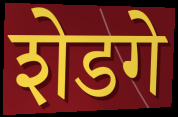
शेडगे